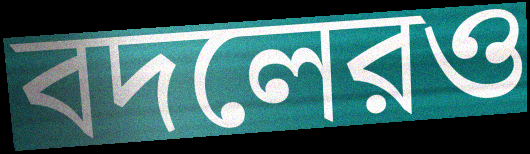
বদলেরও